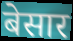
बेसार